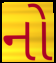
નો